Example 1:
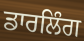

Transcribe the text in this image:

ਡਾਰਲਿੰਗ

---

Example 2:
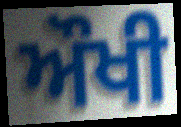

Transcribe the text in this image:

ਔਖੀ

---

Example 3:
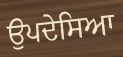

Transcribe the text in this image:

ਉਪਦੇਸਿਆ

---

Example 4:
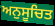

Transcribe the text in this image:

ਅਨੁਸੂਚਿਤ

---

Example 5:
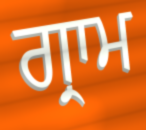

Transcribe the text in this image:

ਗ੍ਰਾਮ